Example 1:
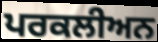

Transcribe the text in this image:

ਪਰਕਲੀਅਨ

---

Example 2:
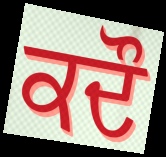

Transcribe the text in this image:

ਕਦੌ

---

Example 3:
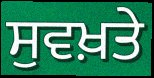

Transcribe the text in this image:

ਸੁਵਖ਼ਤੇ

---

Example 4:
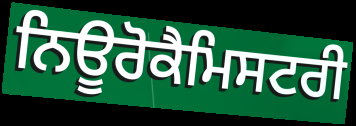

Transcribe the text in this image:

ਨਿਊਰੋਕੈਮਿਸਟਰੀ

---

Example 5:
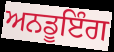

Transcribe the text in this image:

ਅਨਡੂਇੰਗ